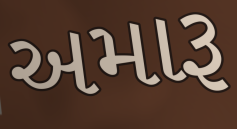
અમારૂ